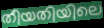
തീയതിയിലെ